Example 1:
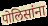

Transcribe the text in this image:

पोलिसांना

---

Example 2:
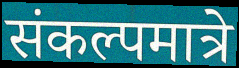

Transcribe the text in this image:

संकल्पमात्रे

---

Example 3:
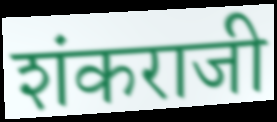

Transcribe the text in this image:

शंकराजी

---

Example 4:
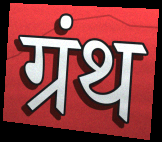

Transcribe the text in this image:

ग्रंथ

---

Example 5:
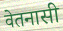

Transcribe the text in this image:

वेतनासी